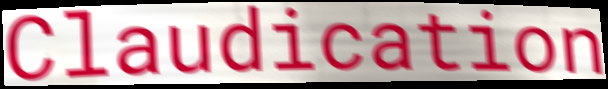
Claudication